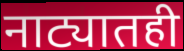
नाट्यातही